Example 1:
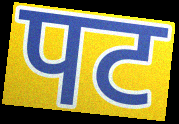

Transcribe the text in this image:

पट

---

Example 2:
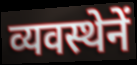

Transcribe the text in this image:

व्यवस्थेनें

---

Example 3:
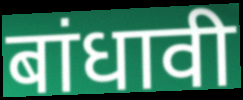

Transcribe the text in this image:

बांधावी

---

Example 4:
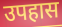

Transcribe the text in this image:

उपहास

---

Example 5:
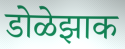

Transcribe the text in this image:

डोळेझाक